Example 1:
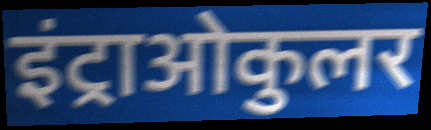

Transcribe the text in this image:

इंट्राओकुलर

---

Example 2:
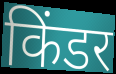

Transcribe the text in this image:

किंडर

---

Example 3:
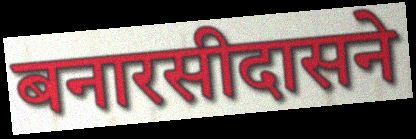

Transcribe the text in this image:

बनारसीदासने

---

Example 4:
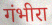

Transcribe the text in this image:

गंभीरा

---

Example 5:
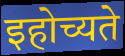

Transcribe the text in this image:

इहोच्यते